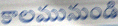
కాలమునుండి